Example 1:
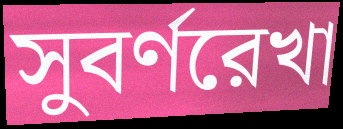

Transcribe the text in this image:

সুবর্ণরেখা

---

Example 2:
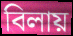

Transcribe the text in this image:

বিলায়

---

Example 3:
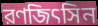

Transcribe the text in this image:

রণজিৎসিন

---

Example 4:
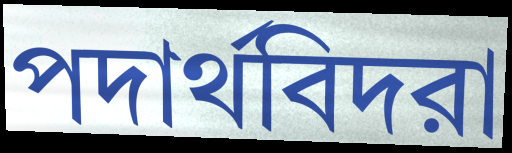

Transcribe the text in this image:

পদার্থবিদরা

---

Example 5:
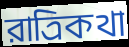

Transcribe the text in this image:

রাত্রিকথা